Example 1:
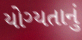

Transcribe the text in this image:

યોગ્યતાનું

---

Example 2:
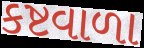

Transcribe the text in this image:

કષ્ટવાળા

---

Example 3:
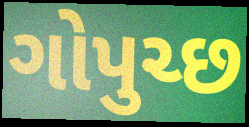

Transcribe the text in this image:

ગોપુચ્છ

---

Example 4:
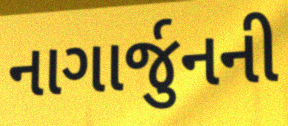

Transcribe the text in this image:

નાગાર્જુનની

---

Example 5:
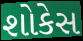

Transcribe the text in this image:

શોકેસ